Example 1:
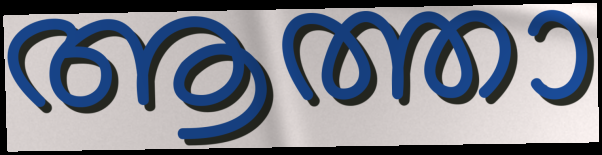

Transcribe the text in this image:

ആത്താ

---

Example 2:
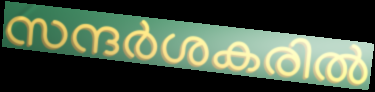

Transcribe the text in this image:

സന്ദർശകരിൽ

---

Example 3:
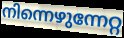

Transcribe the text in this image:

നിന്നെഴുന്നേറ്റ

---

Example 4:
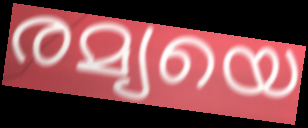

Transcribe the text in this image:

രമ്യയെ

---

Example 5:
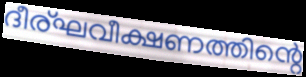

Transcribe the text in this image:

ദീര്ഘവീക്ഷണത്തിന്റെ